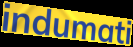
indumati